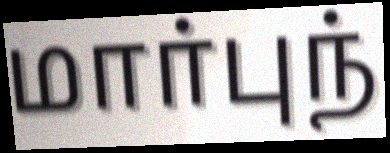
மார்புந்